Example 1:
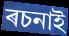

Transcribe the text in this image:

ৰচনাই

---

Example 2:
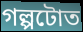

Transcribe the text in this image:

গল্পটোত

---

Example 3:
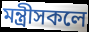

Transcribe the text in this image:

মন্ত্ৰীসকলে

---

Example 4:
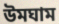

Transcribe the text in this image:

উমঘাম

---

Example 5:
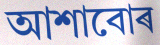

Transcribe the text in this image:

আশাবোৰ